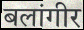
बलांगीर